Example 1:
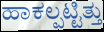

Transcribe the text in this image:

ಹಾಕಲ್ಪಟ್ಟಿತ್ತು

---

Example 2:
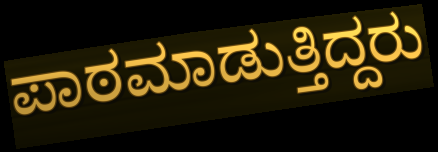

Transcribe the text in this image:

ಪಾಠಮಾಡುತ್ತಿದ್ದರು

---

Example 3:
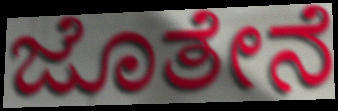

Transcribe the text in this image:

ಜೊತೇನೆ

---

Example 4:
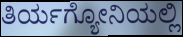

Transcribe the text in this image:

ತಿರ್ಯಗ್ಯೋನಿಯಲ್ಲಿ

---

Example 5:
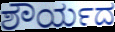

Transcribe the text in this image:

ಶೌರ್ಯದ